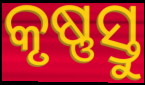
କୃଷ୍ଣସ୍ତୁ